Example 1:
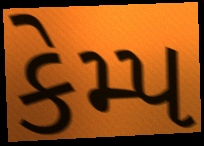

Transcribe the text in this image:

કેમ્પ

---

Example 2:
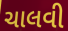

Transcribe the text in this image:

ચાલવી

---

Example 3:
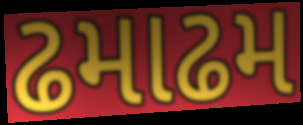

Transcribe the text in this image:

ઢમાઢમ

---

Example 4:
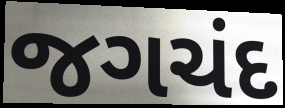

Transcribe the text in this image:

જગચંદ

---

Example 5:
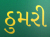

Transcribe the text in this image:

ઠુમરી